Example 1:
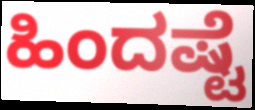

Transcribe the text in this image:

ಹಿಂದಷ್ಟೆ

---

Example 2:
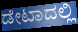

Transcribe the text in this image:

ಡೇಟಾದಲ್ಲಿ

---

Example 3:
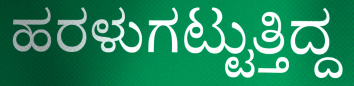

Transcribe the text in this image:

ಹರಳುಗಟ್ಟುತ್ತಿದ್ದ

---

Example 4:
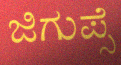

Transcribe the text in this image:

ಜಿಗುಪ್ಸೆ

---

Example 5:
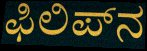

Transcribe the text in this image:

ಫಿಲಿಪ್‌ನ